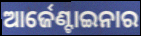
ଆର୍ଜେଣ୍ଟାଇନାର